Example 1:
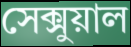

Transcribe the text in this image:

সেক্সুয়াল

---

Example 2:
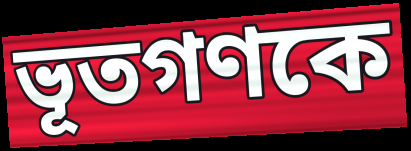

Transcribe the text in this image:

ভূতগণকে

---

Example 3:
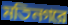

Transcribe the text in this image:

মতিনগরে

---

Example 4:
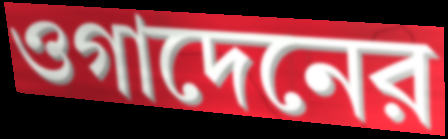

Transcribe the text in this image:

ওগাদেনের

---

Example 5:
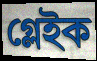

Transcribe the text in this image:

গ্লেইক